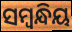
ସମ୍ଵନ୍ଧିୟ